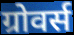
ग्रोवर्स